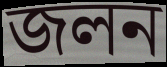
জলন